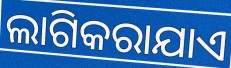
ଲାଗିକରାଯାଏ